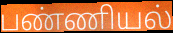
பண்ணியல்